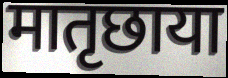
मातृछाया